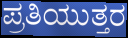
ಪ್ರತಿಯುತ್ತರ